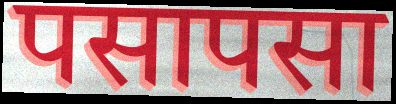
पसापसा